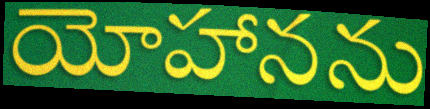
యోహానను